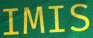
IMIS